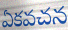
ఏకవచన